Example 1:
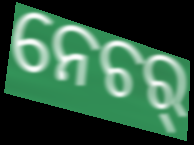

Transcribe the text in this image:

ନେଚର୍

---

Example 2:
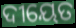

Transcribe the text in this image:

ଦୀୟେତ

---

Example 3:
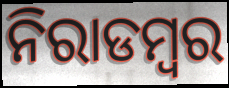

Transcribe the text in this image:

ନିରାଡମ୍ବର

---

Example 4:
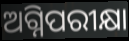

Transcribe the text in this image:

ଅଗ୍ନିପରୀକ୍ଷା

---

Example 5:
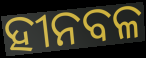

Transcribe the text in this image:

ହୀନବଳ